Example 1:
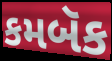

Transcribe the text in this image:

કમબૅક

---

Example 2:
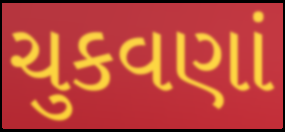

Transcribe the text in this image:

ચુકવણાં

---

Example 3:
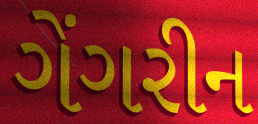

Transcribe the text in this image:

ગેંગરીન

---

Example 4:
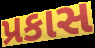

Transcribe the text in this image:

પ્રકાસ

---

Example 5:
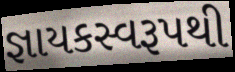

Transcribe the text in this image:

જ્ઞાયકસ્વરૂપથી